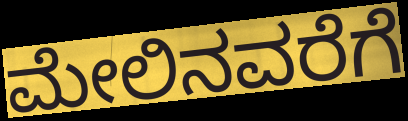
ಮೇಲಿನವರೆಗೆ